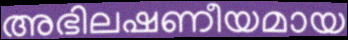
അഭിലഷണീയമായ